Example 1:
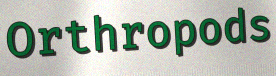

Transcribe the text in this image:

Orthropods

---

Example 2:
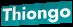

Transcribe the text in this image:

Thiongo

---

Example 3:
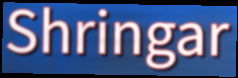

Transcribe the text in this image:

Shringar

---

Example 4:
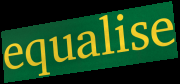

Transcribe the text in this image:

equalise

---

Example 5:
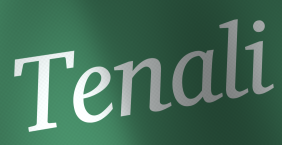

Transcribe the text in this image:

Tenali